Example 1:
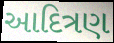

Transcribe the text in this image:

આદિત્રણ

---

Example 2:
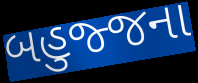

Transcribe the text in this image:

બહુજ્જના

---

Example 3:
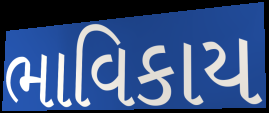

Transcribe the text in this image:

ભાવિકાય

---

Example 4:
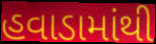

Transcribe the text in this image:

હવાડામાંથી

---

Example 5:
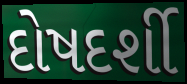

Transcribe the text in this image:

દોષદર્શી